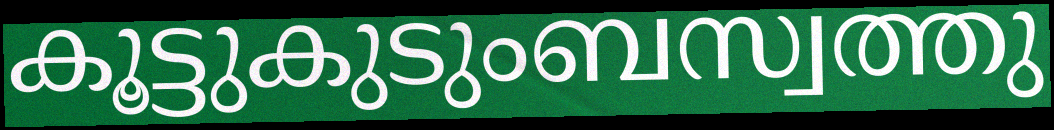
കൂട്ടുകുടുംബസ്വത്തു